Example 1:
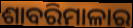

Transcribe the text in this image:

ଶାବରିମାଳାର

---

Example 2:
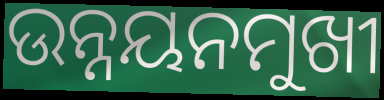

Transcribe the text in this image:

ଉନ୍ନୟନମୁଖୀ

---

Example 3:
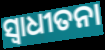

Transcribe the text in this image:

ସ୍ବାଧୀତନା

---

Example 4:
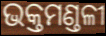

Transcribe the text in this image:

ଭକ୍ତମଣ୍ଡଳୀ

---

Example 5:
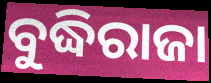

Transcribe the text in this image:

ବୁଦ୍ଧିରାଜା